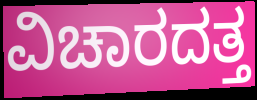
ವಿಚಾರದತ್ತ